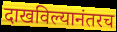
दाखविल्यानंतरच